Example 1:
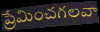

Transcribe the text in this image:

ప్రేమించగలవా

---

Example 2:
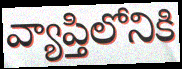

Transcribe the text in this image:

వ్యాప్తిలోనికి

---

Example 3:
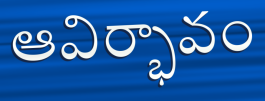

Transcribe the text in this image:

ఆవిర్భావం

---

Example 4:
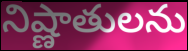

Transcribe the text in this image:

నిష్ణాతులను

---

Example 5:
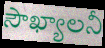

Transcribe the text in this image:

సౌఖ్యాలనీ